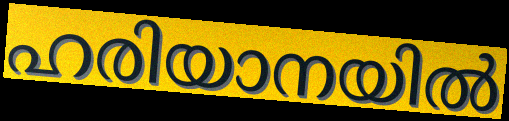
ഹരിയാനയിൽ